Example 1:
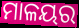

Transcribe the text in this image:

ମାଳୟର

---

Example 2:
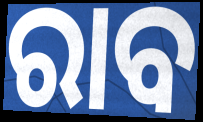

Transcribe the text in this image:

ରାବ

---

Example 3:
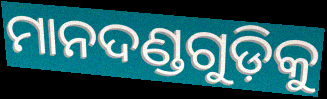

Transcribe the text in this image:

ମାନଦଣ୍ଡଗୁଡ଼ିକୁ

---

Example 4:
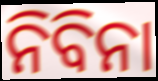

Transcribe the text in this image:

ନିବିନା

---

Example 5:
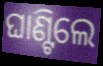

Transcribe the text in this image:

ଘାଣ୍ଟିଲେ